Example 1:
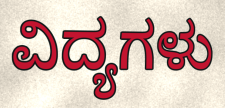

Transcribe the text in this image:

ವಿದ್ಯಗಳು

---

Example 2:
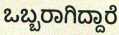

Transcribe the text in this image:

ಒಬ್ಬರಾಗಿದ್ದಾರೆ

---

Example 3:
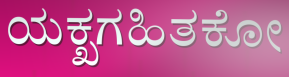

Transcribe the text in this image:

ಯಕ್ಖಗಹಿತಕೋ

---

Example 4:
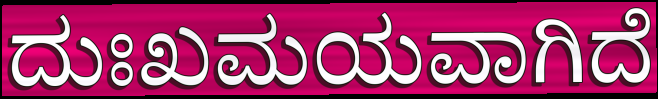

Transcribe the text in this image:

ದುಃಖಮಯವಾಗಿದೆ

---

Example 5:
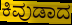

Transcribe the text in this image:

ಕಿವುಡಾದ